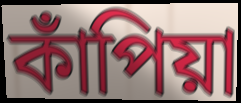
কাঁপিয়া